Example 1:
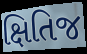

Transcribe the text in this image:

ક્ષિતિજ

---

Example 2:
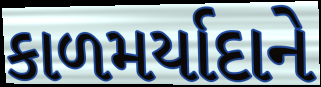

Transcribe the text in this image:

કાળમર્યાદાને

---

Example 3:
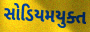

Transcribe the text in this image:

સોડિયમયુક્ત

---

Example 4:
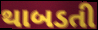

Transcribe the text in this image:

થાબડતી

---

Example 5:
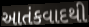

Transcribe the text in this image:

આતંકવાદથી